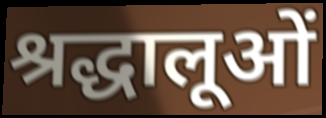
श्रद्धालूओं